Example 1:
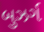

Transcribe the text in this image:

બુઝર્ગ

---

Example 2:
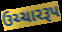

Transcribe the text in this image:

ઉચ્ચારરૂપ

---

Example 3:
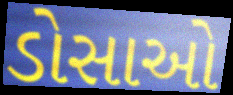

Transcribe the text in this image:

ડોસાઓ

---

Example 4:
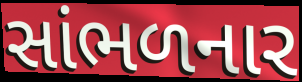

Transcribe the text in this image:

સાંભળનાર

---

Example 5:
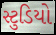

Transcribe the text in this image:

સ્ટુડિયો